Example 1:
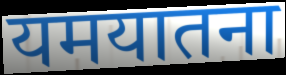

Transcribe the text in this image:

यमयातना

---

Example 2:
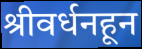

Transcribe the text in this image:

श्रीवर्धनहून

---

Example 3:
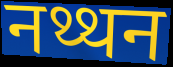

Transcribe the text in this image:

नथ्थन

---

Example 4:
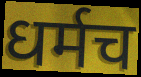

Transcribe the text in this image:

धर्मच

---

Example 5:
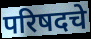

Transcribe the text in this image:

परिषदचे